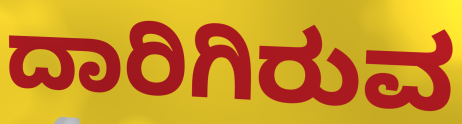
ದಾರಿಗಿರುವ